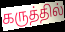
கருத்தில்